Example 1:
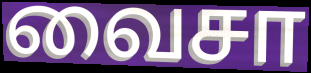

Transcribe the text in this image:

வைசா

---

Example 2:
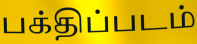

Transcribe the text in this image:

பக்திப்படம்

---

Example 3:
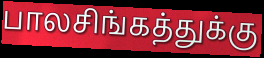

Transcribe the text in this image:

பாலசிங்கத்துக்கு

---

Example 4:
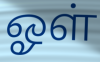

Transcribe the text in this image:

ஓள்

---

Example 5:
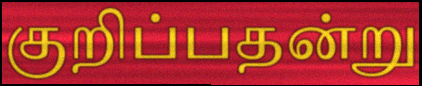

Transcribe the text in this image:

குறிப்பதன்று